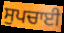
ਸੁਪਚਾਈ